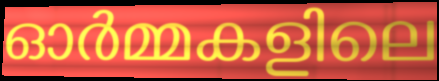
ഓർമ്മകളിലെ